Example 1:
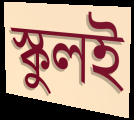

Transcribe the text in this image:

স্কুলই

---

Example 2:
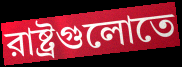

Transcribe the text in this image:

রাষ্ট্রগুলোতে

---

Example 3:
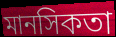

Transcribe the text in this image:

মানসিকতা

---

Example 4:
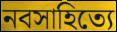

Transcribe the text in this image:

নবসাহিত্যে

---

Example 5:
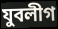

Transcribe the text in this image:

যুবলীগ